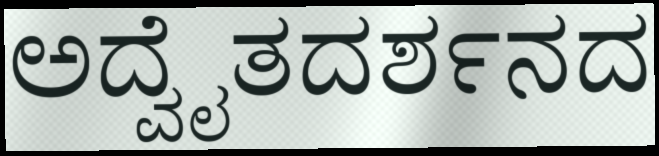
ಅದ್ವೈತದರ್ಶನದ